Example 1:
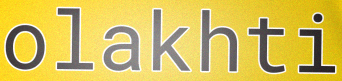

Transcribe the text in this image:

olakhti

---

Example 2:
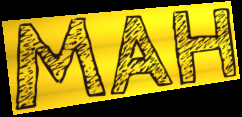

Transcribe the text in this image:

MAH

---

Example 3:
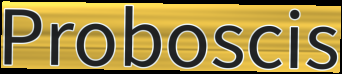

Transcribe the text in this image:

Proboscis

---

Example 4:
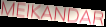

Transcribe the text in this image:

MEIKANDAR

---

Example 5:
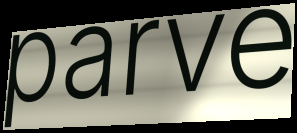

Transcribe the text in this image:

parve